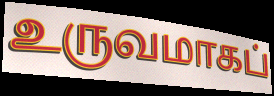
உருவமாகப்